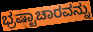
ಭ್ರಷ್ಟಾಚಾರವನ್ನು